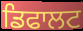
ਡਿਫਾਲਟ